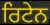
ਰਿਟੇਨ